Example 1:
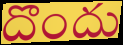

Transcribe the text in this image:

దొందు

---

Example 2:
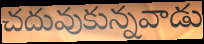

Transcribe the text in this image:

చదువుకున్నవాడు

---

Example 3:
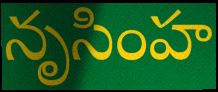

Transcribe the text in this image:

నృసింహ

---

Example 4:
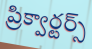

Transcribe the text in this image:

ప్రిక్వార్టర్స్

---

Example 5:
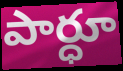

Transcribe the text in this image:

పార్ధూ